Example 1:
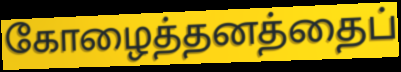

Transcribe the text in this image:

கோழைத்தனத்தைப்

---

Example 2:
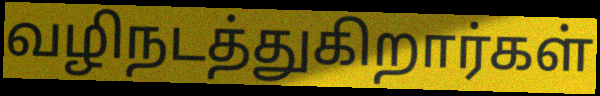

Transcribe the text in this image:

வழிநடத்துகிறார்கள்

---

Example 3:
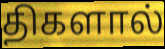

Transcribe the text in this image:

திகளால்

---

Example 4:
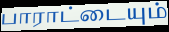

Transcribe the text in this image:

பாராட்டையும்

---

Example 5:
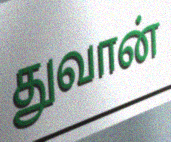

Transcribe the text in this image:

துவான்